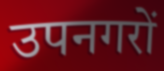
उपनगरों